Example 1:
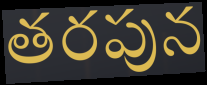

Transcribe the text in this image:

తరపున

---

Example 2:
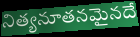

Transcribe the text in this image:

నిత్యనూతనమైనదే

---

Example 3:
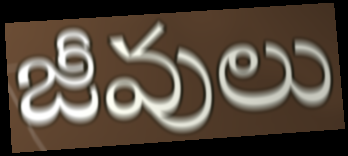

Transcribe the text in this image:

జీవులు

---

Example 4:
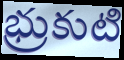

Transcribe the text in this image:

భ్రుకుటి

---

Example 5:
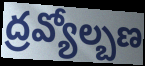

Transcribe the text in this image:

ద్రవ్యోల్బణ